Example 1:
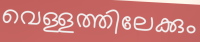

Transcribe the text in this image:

വെള്ളത്തിലേക്കും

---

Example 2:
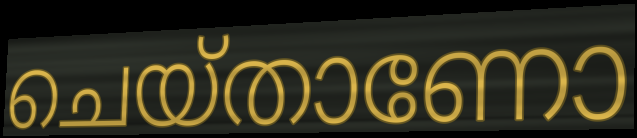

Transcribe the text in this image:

ചെയ്താണോ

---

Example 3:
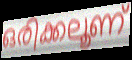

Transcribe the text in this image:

ഒരിക്കലൂണ്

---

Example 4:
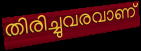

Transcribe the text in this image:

തിരിച്ചുവരവാണ്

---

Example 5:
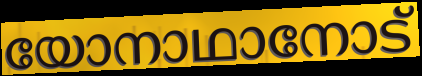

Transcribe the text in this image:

യോനാഥാനോട്